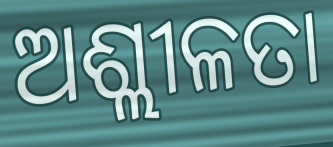
ଅଶ୍ଲୀଳତା